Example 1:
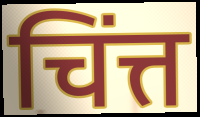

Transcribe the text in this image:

चिंत्त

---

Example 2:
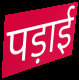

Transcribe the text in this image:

पड़ाई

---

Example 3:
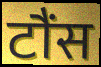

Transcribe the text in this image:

टौंस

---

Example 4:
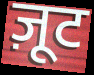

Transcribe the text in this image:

ज़ूट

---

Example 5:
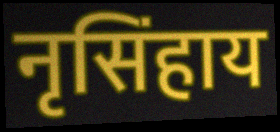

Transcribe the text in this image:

नृसिंहाय